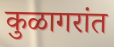
कुळागरांत